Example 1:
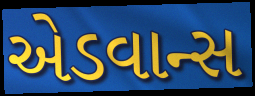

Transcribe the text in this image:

એડવાન્સ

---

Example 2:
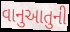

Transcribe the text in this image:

વાનુઆતુની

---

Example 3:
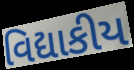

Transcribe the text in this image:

વિદ્યાકીય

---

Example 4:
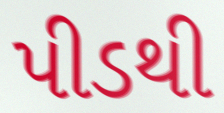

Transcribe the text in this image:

પીડથી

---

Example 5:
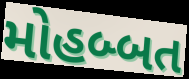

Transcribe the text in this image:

મોહબ્બત